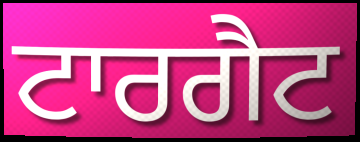
ਟਾਰਗੈਟ